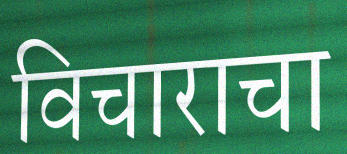
विचाराचा